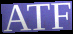
ATF